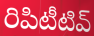
రిపిటీటివ్